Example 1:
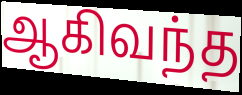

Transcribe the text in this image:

ஆகிவந்த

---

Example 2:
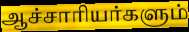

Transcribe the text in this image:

ஆச்சாரியர்களும்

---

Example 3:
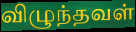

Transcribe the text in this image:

விழுந்தவள்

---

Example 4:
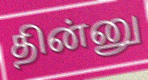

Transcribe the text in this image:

தின்னு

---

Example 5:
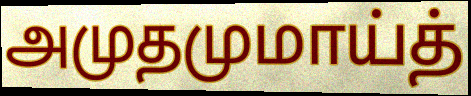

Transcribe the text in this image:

அமுதமுமாய்த்